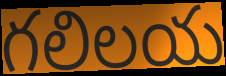
గలిలయ